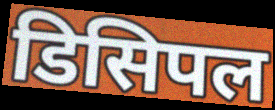
डिसिपल